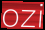
ozi